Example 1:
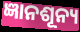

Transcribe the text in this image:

ଜ୍ଞାନଶୂନ୍ୟ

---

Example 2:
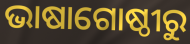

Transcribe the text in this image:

ଭାଷାଗୋଷ୍ଠୀରୁ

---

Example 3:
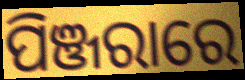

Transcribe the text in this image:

ପିଞ୍ଜରାରେ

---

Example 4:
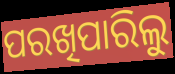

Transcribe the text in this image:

ପରଖିପାରିଲୁ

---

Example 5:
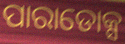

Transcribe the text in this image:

ପାରାଡୋକ୍ସ